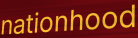
nationhood